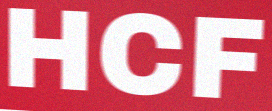
HCF